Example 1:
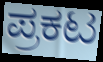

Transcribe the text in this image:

ಪ್ರಕಟ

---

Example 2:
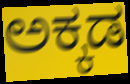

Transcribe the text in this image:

ಅಕ್ಕಡ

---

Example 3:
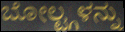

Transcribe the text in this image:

ಬೋಲ್ಟ್ಗಳನ್ನು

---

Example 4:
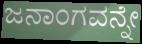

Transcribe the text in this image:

ಜನಾಂಗವನ್ನೇ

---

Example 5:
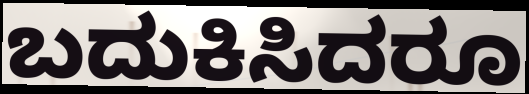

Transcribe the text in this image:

ಬದುಕಿಸಿದರೂ